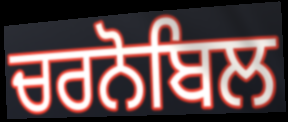
ਚਰਨੋਬਿਲ